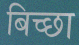
बिच्छा